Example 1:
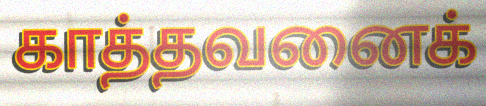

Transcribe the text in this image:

காத்தவனைக்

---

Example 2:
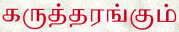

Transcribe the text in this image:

கருத்தரங்கும்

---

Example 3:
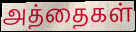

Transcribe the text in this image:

அத்தைகள்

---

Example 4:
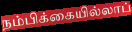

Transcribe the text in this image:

நம்பிக்கையில்லாப்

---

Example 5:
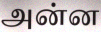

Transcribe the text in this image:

அன்ன